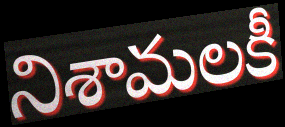
నిశామలకీ